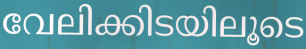
വേലിക്കിടയിലൂടെ